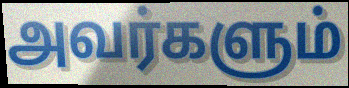
அவர்களும்